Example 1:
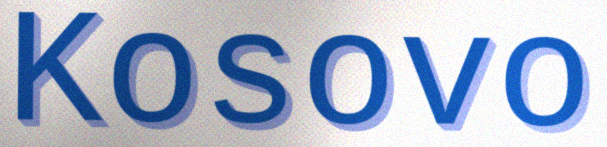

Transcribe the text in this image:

Kosovo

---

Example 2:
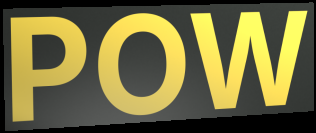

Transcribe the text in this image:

POW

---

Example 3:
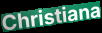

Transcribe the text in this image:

Christiana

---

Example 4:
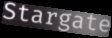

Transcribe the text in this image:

Stargate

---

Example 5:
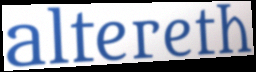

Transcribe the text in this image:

altereth